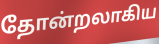
தோன்றலாகிய